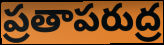
ప్రతాపరుద్ర